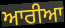
ਆਰੀਆ